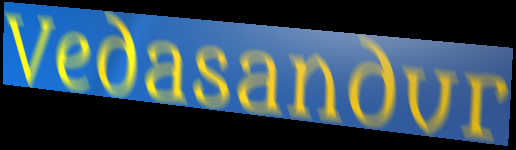
Vedasandur